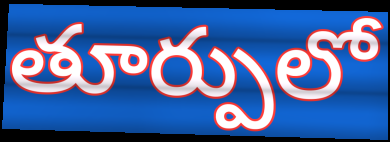
తూర్పులో